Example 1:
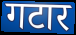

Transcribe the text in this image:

गटार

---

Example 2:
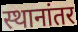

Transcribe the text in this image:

स्थानांतर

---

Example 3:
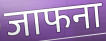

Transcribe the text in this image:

जाफना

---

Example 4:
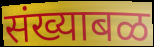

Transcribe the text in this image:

संख्याबळ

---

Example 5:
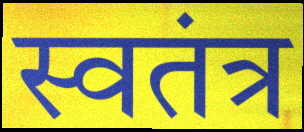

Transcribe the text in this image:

स्‍वतंत्र